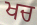
ਖਚ